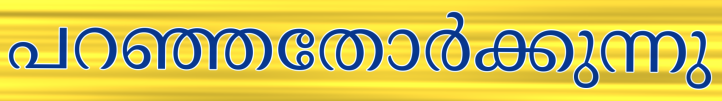
പറഞ്ഞതോർക്കുന്നു